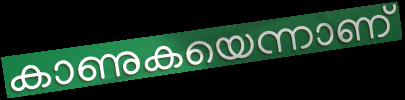
കാണുകയെന്നാണ്